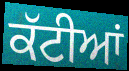
ਕੱਟੀਆਂ